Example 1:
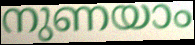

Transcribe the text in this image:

നുണയാം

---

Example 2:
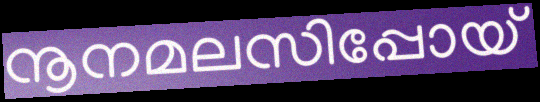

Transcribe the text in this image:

നൂനമലസിപ്പോയ്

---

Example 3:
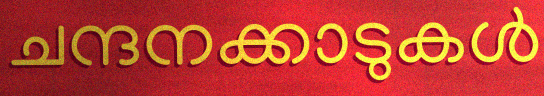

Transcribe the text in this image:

ചന്ദനക്കാടുകൾ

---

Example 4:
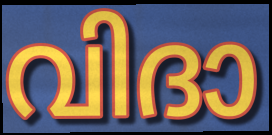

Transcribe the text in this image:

വിദാ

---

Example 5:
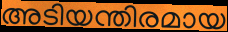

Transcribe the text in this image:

അടിയന്തിരമായ